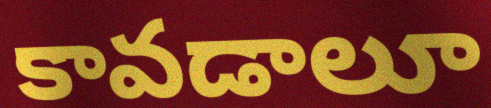
కావడాలూ